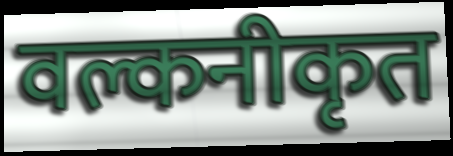
वल्कनीकृत